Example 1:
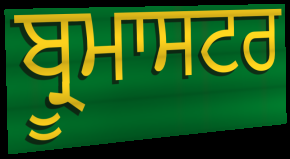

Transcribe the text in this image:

ਬ੍ਰੂਮਾਸਟਰ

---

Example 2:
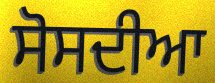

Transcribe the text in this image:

ਸੋਸਦੀਆ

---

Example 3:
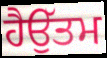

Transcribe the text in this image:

ਹੈਉੱਤਮ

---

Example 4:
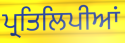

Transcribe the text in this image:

ਪ੍ਰਤਿਲਿਪੀਆਂ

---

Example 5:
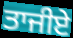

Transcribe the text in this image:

ਤਾਜੀਏ